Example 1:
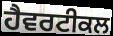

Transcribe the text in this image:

ਹੈਵਰਟੀਕਲ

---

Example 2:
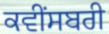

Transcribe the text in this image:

ਕਵੀਂਸਬਰੀ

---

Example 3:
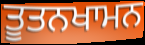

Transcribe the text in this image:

ਤੂਤਨਖਾਮਨ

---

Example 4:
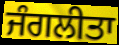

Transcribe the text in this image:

ਜੰਗਲੀਤਾ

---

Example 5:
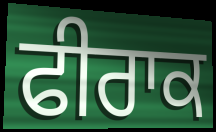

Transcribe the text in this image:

ਫੀਰਾਕ